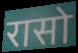
रासो